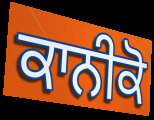
ਕਾਨੀਕੋ